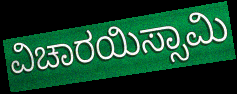
ವಿಚಾರಯಿಸ್ಸಾಮಿ